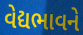
વેદ્યભાવને